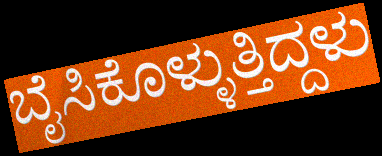
ಬೈಸಿಕೊಳ್ಳುತ್ತಿದ್ದಳು